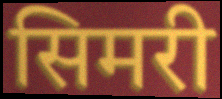
सिमरी